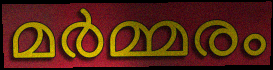
മർമ്മരം